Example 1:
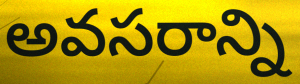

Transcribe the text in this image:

అవసరాన్ని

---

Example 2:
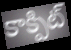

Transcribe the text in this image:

కాక్పిట్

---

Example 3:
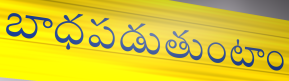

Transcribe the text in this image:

బాధపడుతుంటాం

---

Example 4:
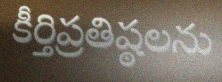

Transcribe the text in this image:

కీర్తిప్రతిష్ఠలను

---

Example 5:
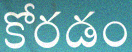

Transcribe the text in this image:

కోరడం